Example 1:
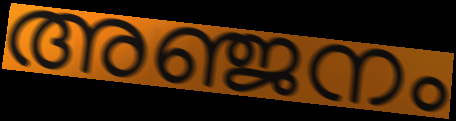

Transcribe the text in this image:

അഞ്ജനം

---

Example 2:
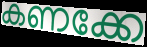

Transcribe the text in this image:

കണക്കേ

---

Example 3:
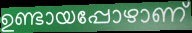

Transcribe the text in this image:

ഉണ്ടായപ്പോഴാണ്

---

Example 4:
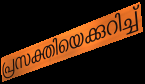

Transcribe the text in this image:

പ്രസക്തിയെക്കുറിച്ച്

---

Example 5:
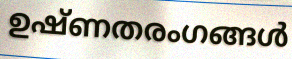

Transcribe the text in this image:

ഉഷ്ണതരംഗങ്ങൾ